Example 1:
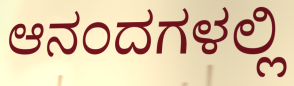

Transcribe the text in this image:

ಆನಂದಗಳಲ್ಲಿ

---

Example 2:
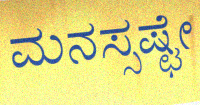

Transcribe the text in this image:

ಮನಸ್ಸಷ್ಟೇ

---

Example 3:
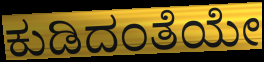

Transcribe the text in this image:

ಕುಡಿದಂತೆಯೇ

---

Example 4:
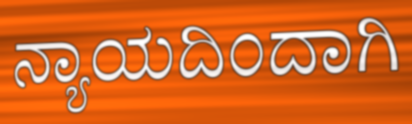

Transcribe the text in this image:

ನ್ಯಾಯದಿಂದಾಗಿ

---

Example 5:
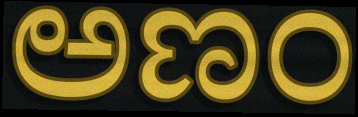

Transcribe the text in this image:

ಅಣಂ